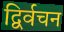
द्विर्वचन